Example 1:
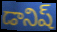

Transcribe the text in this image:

డానిష్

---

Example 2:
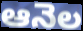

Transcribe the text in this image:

ఆనెల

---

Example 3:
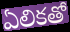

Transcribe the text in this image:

ఏలికతో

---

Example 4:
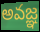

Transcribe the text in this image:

అవజ్ఞ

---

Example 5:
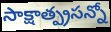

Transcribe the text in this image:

సాక్షాత్ప్రసన్నో